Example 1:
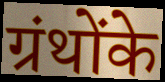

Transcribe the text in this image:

ग्रंथोंके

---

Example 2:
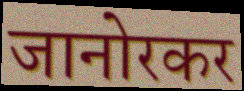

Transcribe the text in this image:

जानोरकर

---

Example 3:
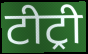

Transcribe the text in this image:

टीट्री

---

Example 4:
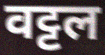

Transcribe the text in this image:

वट्टल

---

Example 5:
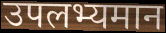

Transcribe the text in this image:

उपलभ्यमान